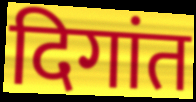
दिगांत